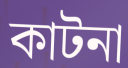
কাটনা